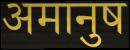
अमानुष